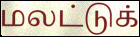
மலட்டுக்